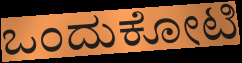
ಒಂದುಕೋಟಿ